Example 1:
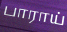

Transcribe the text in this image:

பாராய்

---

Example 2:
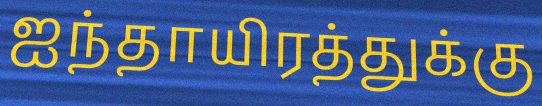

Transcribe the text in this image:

ஐந்தாயிரத்துக்கு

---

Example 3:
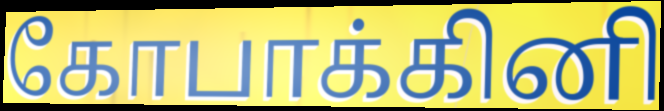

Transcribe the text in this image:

கோபாக்கினி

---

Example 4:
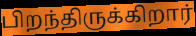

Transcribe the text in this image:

பிறந்திருக்கிறார்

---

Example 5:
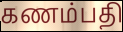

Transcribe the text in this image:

கணம்பதி